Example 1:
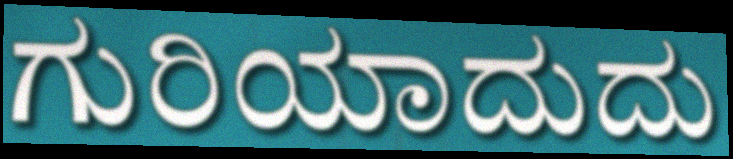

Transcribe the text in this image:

ಗುರಿಯಾದುದು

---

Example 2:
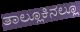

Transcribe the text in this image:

ತಾಲ್ಲೂಕಿನಲ್ಲೂ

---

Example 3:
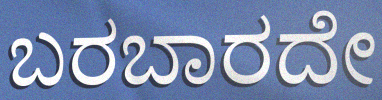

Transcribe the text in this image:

ಬರಬಾರದೇ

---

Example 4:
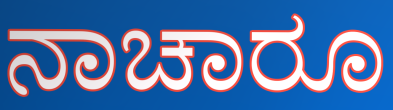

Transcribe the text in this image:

ನಾಚಾರೂ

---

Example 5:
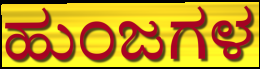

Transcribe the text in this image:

ಹುಂಜಗಳ